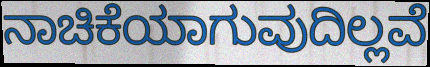
ನಾಚಿಕೆಯಾಗುವುದಿಲ್ಲವೆ